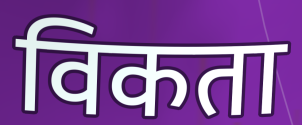
विकता